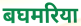
बघमरिया